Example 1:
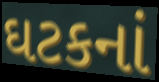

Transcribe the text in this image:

ઘટકનાં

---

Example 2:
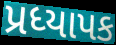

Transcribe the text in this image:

પ્રધ્યાપક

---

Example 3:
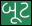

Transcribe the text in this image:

બૂટ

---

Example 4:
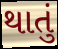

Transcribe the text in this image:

થાતું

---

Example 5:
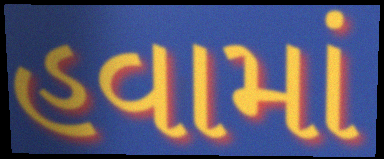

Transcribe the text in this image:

હવામાં